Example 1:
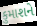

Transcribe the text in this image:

કુમાશને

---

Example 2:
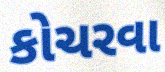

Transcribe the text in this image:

કોચરવા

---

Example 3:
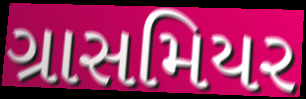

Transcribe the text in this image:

ગ્રાસમિયર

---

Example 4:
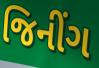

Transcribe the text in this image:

જિનીંગ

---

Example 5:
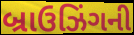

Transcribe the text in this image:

બ્રાઉઝિંગની